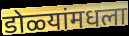
डोळ्यांमधला